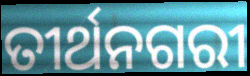
ତୀର୍ଥନଗରୀ